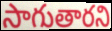
సాగుతారని